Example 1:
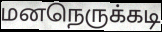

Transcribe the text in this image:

மனநெருக்கடி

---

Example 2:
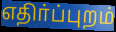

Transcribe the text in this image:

எதிர்ப்புறம்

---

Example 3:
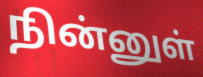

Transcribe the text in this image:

நின்னுள்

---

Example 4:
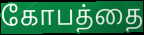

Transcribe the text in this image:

கோபத்தை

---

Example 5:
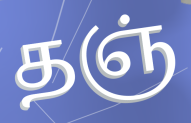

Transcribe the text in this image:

தஞ்